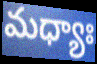
మధ్యాః